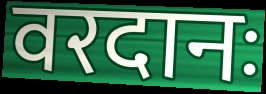
वरदानः